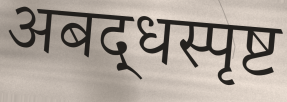
अबद्धस्पृष्ट